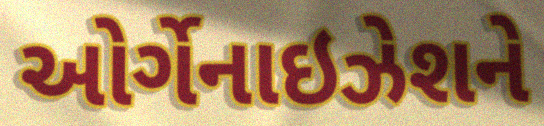
ઓર્ગેનાઇઝેશને